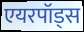
एयरपॉड्स